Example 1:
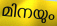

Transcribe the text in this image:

മിനയും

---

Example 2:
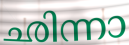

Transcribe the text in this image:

ഛിന്നാ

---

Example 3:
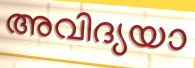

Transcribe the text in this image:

അവിദ്യയാ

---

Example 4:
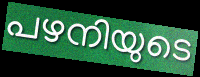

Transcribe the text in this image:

പഴനിയുടെ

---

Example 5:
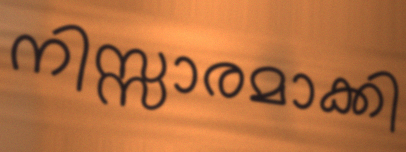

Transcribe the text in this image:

നിസ്സാരമാക്കി